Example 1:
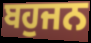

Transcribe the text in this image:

ਬਹੁਜਨ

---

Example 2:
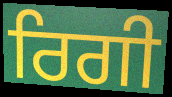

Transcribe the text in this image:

ਰਿਗੀ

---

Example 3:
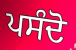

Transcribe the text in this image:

ਪਸੰਦੋ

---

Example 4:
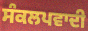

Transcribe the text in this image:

ਸੰਕਲਪਵਾਦੀ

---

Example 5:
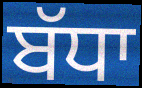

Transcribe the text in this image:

ਬੱਧਾ